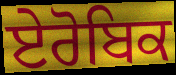
ਏਰੋਬਿਕ